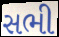
સભી